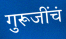
गुरूजींचं